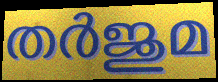
തർജുമ